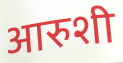
आरुशी